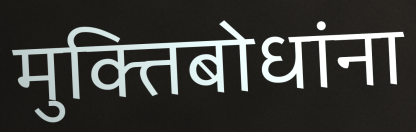
मुक्तिबोधांना